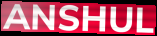
ANSHUL